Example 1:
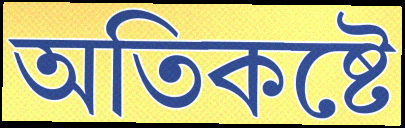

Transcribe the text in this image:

অতিকষ্টে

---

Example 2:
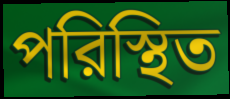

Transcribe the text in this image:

পরিস্থিত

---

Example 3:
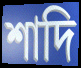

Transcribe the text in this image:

শাদি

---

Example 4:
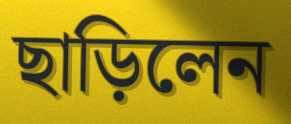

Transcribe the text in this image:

ছাড়িলেন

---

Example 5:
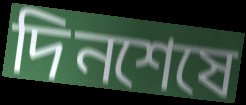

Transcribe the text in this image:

দিনশেষে